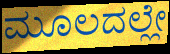
ಮೂಲದಲ್ಲೇ